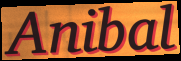
Anibal